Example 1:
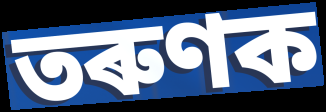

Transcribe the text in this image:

তৰুণক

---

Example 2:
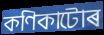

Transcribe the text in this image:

কণিকাটোৰ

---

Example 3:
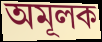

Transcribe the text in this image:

অমূলক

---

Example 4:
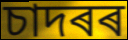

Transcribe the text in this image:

চাদৰৰ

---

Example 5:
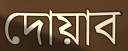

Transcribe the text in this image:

দোয়াব